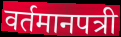
वर्तमानपत्री